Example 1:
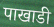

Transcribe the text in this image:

पाखाडी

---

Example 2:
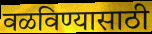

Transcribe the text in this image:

वळविण्यासाठी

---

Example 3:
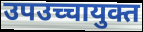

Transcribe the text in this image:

उपउच्चायुक्त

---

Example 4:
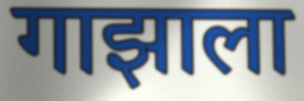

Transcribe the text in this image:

गाझाला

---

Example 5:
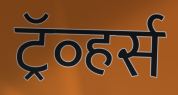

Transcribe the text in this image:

ट्रॅव्हर्स